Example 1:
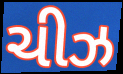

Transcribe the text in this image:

ચીઝ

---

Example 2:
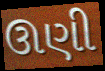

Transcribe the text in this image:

ઊણી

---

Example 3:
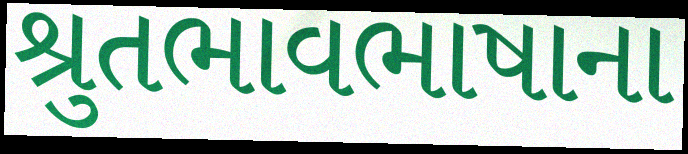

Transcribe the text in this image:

શ્રુતભાવભાષાના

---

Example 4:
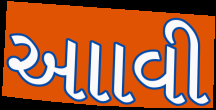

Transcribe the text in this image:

આાવી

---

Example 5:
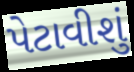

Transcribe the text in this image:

પેટાવીશું